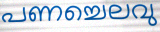
പണച്ചെലവു